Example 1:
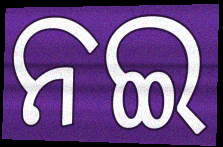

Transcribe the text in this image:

ନଇ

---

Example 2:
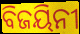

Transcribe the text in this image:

ବିଜୟିନୀ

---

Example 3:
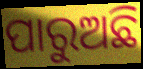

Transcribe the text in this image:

ପାରୁଅଛି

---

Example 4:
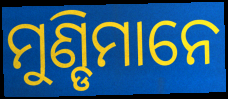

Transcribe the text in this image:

ମୁଣ୍ଡିମାନେ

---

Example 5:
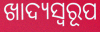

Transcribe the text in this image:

ଖାଦ୍ୟସ୍ୱରୂପ